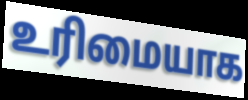
உரிமையாக